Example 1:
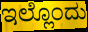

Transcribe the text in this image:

ಇಲ್ಲೊಂದು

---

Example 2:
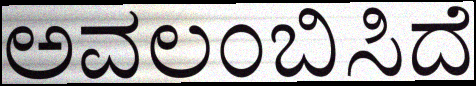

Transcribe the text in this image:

ಅವಲಂಬಿಸಿದೆ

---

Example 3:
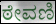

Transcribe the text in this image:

ಠೇವಣಿ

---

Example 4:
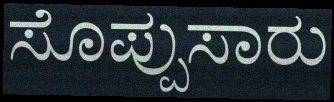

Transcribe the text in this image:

ಸೊಪ್ಪುಸಾರು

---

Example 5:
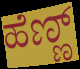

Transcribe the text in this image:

ಹೆಣ್ಣ್